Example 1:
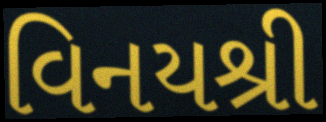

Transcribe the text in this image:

વિનયશ્રી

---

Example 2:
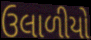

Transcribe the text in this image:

ઉલાળીયો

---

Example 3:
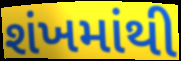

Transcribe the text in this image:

શંખમાંથી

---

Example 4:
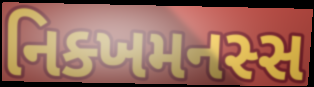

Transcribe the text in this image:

નિક્ખમનસ્સ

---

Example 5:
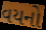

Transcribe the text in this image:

વયનો